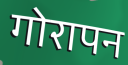
गोरापन